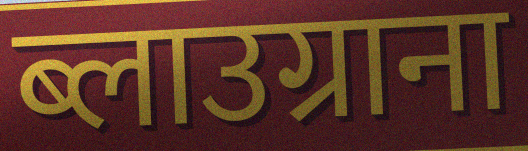
ब्लाउग्राना